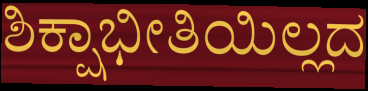
ಶಿಕ್ಷಾಭೀತಿಯಿಲ್ಲದ